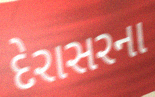
દેરાસરના